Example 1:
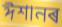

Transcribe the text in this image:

ঈশানৰ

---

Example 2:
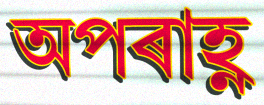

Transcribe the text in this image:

অপৰাহ্ণ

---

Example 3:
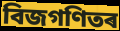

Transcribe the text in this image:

বিজগণিতৰ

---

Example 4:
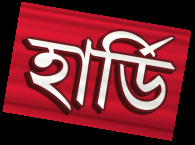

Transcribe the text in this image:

হাৰ্ডি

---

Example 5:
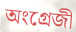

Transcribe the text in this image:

অংগ্ৰেজী